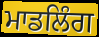
ਮਾਡਲਿੰਗ